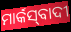
ମାର୍କସ୍‍ବାଦୀ